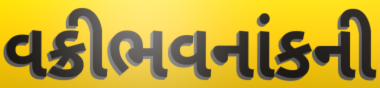
વક્રીભવનાંકની